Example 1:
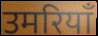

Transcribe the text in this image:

उमरियाँ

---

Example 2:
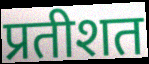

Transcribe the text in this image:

प्रतीशत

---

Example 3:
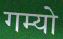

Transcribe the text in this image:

गम्यो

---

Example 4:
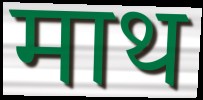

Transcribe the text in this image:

माथ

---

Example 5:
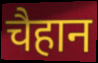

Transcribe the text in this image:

चैहान